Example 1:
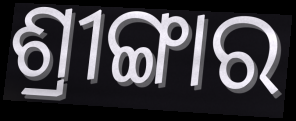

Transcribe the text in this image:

ଶ୍ରୀଙ୍ଗାର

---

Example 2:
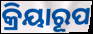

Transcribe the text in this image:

କ୍ରିୟାରୂପ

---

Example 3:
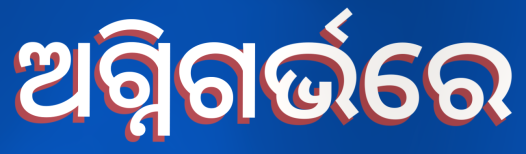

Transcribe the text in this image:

ଅଗ୍ନିଗର୍ଭରେ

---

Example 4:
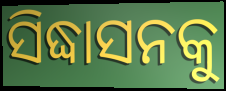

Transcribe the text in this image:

ସିଦ୍ଧାସନକୁ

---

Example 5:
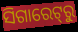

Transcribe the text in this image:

ସିଗାରେଟ୍‌ରୁ